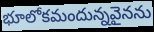
భూలోకమందున్నవైనను